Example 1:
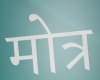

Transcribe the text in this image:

मोत्र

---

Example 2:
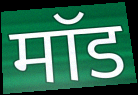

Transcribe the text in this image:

मॉड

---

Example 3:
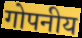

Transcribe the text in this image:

गोपनीय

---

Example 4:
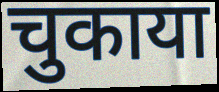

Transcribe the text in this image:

चुकाया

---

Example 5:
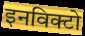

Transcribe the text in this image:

इनविक्टो